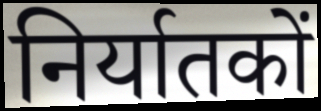
निर्यातकों